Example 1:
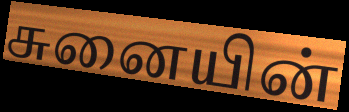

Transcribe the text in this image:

சுனையின்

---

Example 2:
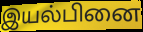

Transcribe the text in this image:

இயல்பினை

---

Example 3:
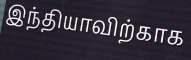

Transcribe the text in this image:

இந்தியாவிற்காக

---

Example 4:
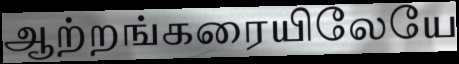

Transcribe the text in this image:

ஆற்றங்கரையிலேயே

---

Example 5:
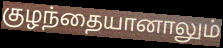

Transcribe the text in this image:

குழந்தையானாலும்